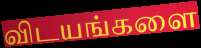
விடயங்களை